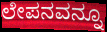
ಲೇಪನವನ್ನೂ